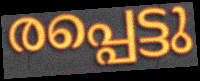
രപ്പെട്ടു